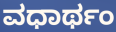
ವಧಾರ್ಥಂ